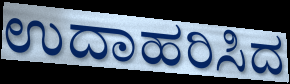
ಉದಾಹರಿಸಿದ